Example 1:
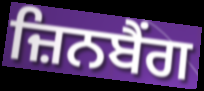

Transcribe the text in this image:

ਜ਼ਿਨਬੈਂਗ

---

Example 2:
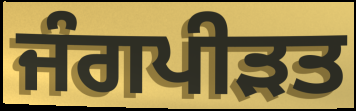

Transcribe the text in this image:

ਜੰਗਪੀੜਤ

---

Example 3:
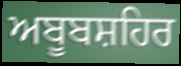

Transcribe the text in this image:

ਅਬੂਬਸ਼ਹਿਰ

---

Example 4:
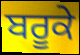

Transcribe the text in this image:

ਬਰੂਕੇ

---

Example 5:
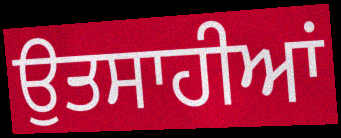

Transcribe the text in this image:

ਉਤਸਾਹੀਆਂ